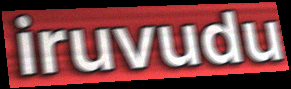
iruvudu